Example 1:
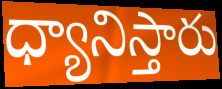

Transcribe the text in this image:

ధ్యానిస్తారు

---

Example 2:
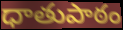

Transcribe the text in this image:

ధాతుపాఠం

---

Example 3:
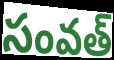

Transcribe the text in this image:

సంవత్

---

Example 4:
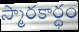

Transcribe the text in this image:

స్మారకార్ధం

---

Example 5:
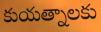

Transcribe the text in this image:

కుయత్నాలకు